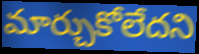
మార్చుకోలేదని